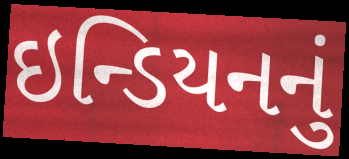
ઇન્ડિયનનું